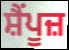
ਸ਼ੈਂਪੂਜ਼